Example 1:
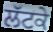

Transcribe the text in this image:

ਲੱਟਕੇ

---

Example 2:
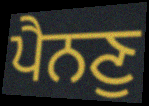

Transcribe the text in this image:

ਪੈਨਣੁ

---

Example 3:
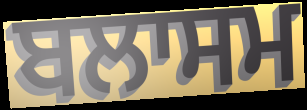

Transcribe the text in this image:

ਬਲਾਸਮ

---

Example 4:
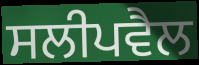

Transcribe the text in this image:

ਸਲੀਪਵੈਲ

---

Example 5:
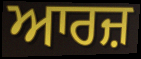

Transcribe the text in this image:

ਆਰਜ਼